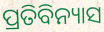
ପ୍ରତିବିନ୍ୟାସ